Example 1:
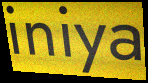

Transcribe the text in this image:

iniya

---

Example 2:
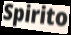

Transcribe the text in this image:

Spirito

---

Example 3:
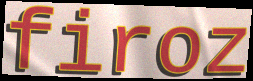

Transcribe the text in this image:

firoz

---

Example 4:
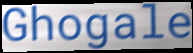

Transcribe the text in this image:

Ghogale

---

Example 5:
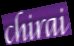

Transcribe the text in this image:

chirai